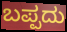
ಬಪ್ಪದು